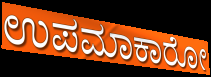
ಉಪಮಾಕಾರೋ